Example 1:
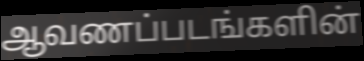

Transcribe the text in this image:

ஆவணப்படங்களின்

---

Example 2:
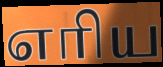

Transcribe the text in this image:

எரிய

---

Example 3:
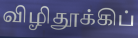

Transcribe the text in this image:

விழிதூக்கிப்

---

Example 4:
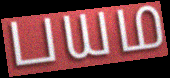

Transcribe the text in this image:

பயம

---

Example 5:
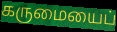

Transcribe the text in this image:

கருமையைப்